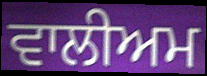
ਵਾਲੀਅਮ